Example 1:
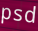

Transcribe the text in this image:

psd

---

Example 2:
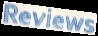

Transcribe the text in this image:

Reviews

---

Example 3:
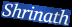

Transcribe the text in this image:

Shrinath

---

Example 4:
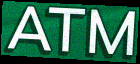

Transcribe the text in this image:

ATM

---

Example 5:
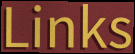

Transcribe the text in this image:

Links